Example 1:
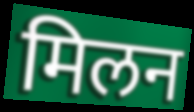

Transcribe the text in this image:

मिलन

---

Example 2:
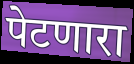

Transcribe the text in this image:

पेटणारा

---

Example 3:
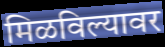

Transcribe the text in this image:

मिळविल्यावर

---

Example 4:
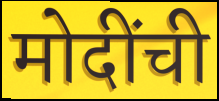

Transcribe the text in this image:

मोदींची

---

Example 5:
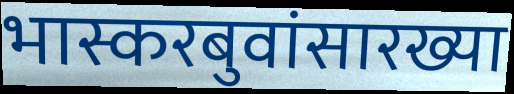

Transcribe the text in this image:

भास्करबुवांसारख्या